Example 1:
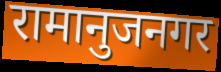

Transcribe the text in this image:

रामानुजनगर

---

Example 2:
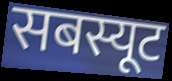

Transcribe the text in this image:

सबस्यूट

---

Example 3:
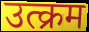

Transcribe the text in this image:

उत्क्रम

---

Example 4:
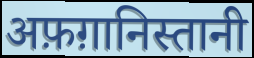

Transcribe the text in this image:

अफ़ग़ानिस्तानी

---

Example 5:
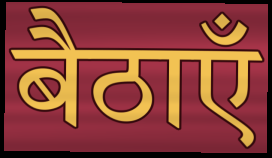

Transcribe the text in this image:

बैठाएँ